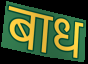
बाध